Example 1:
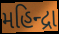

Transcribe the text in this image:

મહિન્દ્રા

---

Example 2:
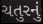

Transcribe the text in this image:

ચતુરનું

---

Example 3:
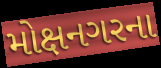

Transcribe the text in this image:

મોક્ષનગરના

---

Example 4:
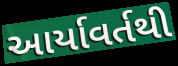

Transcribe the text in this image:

આર્યાવર્તથી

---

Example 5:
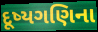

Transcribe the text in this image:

દૂષ્યગણિના